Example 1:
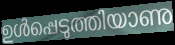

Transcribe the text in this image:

ഉൾപ്പെടുത്തിയാണു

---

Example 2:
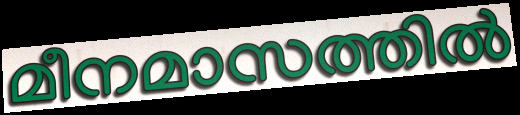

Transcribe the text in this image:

മീനമാസത്തിൽ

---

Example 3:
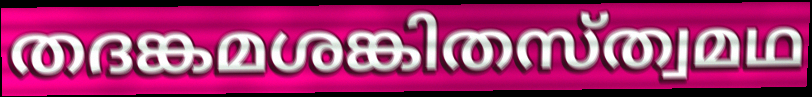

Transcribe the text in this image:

തദങ്കമശങ്കിതസ്ത്വമഥ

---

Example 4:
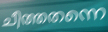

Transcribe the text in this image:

ചീത്തതന്നെ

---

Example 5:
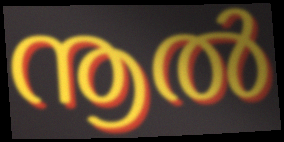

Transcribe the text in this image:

നൂൽ